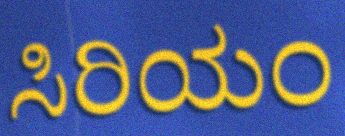
ಸಿರಿಯಂ